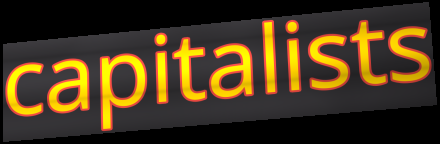
capitalists